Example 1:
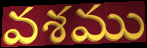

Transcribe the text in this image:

వశము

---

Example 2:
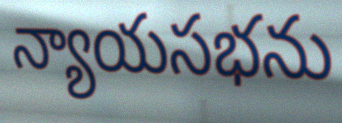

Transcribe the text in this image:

న్యాయసభను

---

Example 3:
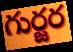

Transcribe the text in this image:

గుర్జర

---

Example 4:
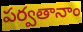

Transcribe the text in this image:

పర్వతానాం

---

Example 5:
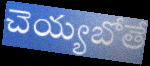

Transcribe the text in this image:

చెయ్యబోతే